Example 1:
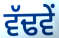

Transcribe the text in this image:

ਵੱਢਵੇਂ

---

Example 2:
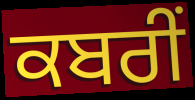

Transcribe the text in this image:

ਕਬਰੀਂ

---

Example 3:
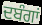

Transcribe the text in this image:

ਦਬੰਗਾਂ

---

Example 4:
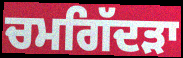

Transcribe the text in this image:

ਚਮਗਿੱਦੜਾ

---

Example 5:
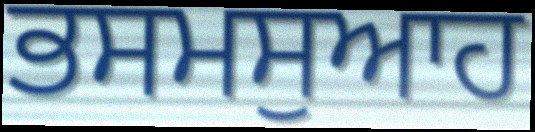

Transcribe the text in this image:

ਭਸਮਸੁਆਹ